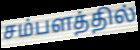
சம்பளத்தில்